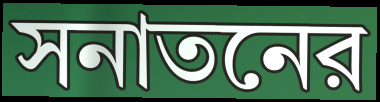
সনাতনের